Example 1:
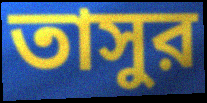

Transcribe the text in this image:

তাসুর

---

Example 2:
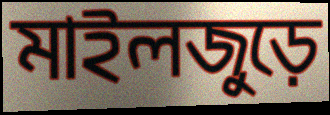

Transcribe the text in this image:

মাইলজুড়ে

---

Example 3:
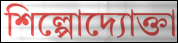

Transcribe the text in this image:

শিল্পোদ্যোক্তা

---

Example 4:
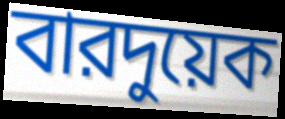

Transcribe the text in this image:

বারদুয়েক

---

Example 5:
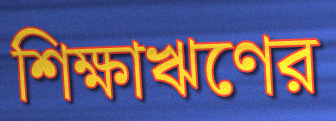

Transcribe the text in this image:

শিক্ষাঋণের